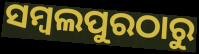
ସମ୍ବଲପୁରଠାରୁ